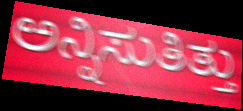
ಅನ್ನಿಸುತಿತ್ತು